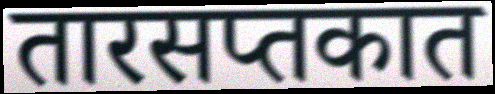
तारसप्तकात